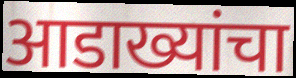
आडाख्यांचा